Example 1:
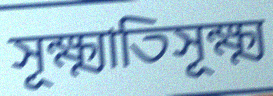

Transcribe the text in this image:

সূক্ষ্মাতিসূক্ষ্ম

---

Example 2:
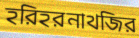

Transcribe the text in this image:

হরিহরনাথজির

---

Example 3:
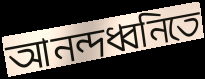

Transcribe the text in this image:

আনন্দধ্বনিতে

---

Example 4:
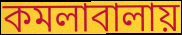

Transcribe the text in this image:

কমলাবালায়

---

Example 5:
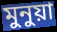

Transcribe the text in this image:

মুনুয়া